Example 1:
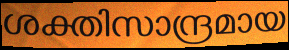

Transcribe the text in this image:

ശക്തിസാന്ദ്രമായ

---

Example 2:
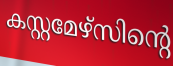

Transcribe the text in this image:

കസ്റ്റമേഴ്സിന്റെ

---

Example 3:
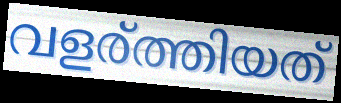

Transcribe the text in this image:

വളര്ത്തിയത്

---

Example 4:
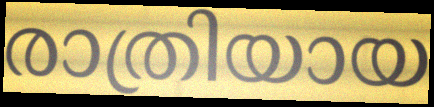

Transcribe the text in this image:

രാത്രിയായ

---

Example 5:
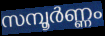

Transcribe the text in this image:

സമ്പൂർണ്ണം